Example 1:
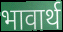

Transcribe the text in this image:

भावार्थ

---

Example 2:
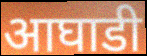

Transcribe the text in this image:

आघाडी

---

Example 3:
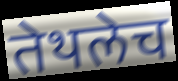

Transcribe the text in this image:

तेथलेच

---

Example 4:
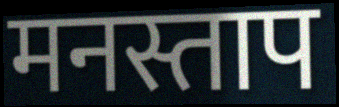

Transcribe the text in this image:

मनस्ताप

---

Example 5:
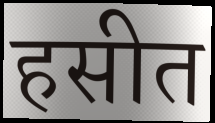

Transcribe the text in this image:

हसीत